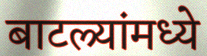
बाटल्यांमध्ये